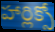
హార్లిక్సో